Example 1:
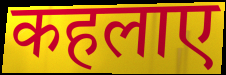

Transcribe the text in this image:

कहलाए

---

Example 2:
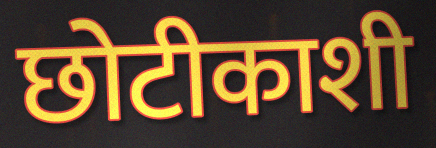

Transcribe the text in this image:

छोटीकाशी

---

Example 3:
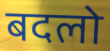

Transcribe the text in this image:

बदलो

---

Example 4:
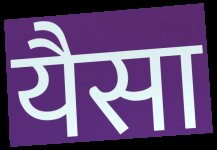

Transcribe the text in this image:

यैसा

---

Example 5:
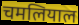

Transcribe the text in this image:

चमलियाल